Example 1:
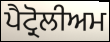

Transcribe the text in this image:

ਪੈਟ੍ਰੋਲੀਅਮ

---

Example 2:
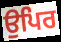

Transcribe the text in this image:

ਉਪਿਰ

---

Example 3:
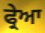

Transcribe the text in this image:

ਫ੍ਰੇਆ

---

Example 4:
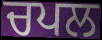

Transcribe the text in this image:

ਚਪਲ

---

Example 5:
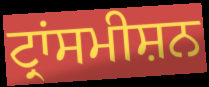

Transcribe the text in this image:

ਟ੍ਰਾਂਸਮੀਸ਼ਨ